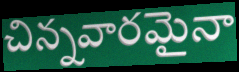
చిన్నవారమైనా